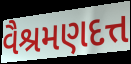
વૈશ્રમણદત્ત